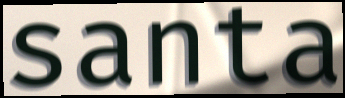
santa